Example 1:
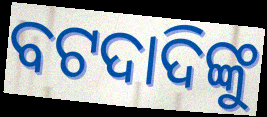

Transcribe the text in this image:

ବଟଦାଦିଙ୍କୁ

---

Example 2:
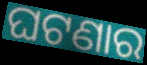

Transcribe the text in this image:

ଘଟଣାର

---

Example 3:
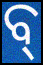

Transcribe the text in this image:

ବ୍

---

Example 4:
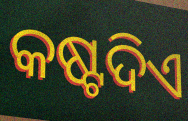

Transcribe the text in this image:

କଷ୍ଟଦିଏ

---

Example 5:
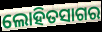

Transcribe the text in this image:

ଲୋହିତସାଗର